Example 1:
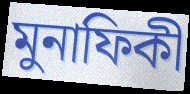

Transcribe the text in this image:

মুনাফিকী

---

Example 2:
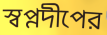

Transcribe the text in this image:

স্বপ্নদীপের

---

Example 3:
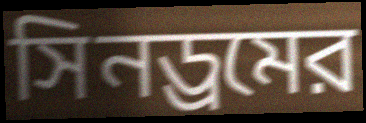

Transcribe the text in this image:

সিনড্রমের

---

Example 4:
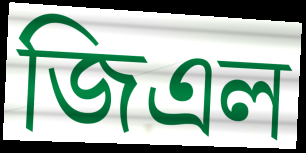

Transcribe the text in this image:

জিএল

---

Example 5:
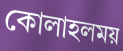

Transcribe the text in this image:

কোলাহলময়